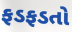
ફડફડતો